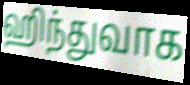
ஹிந்துவாக